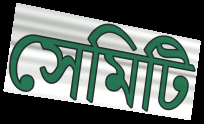
সেমিটি